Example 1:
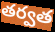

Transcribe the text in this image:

తర్వత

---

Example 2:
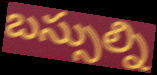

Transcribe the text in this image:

బస్సుల్ని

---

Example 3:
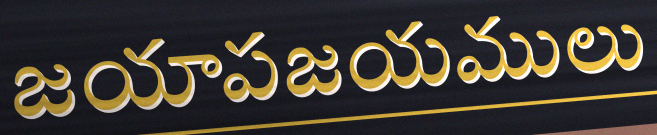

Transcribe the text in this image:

జయాపజయములు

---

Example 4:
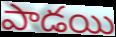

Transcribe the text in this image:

పాడయి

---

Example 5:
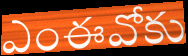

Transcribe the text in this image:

ఎంఈవోకు